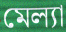
মেল্যা